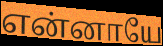
என்னாயே